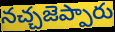
నచ్చజెప్పారు